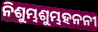
ନିଶୁମ୍ଭଶୁମ୍ଭହନନୀ